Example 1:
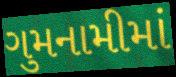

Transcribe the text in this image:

ગુમનામીમાં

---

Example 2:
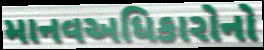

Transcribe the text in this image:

માનવઅધિકારોનો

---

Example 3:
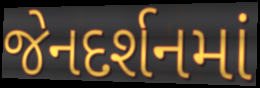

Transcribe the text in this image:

જેનદર્શનમાં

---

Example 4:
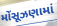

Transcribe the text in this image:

મોંસૂઝણામાં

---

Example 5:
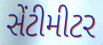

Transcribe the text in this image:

સેંટીમીટર